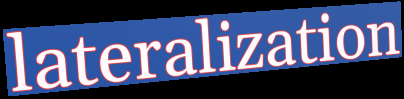
lateralization